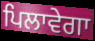
ਪਿਲਾਵੇਗਾ